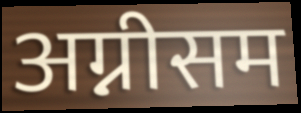
अग्नीसम